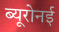
ब्यूरोनई